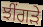
ਝੀਂਗੜੇ